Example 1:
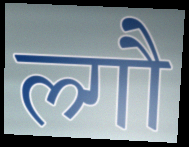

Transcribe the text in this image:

ल्गौ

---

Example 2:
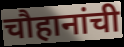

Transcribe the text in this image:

चौहानांची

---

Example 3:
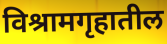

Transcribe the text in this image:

विश्रामगृहातील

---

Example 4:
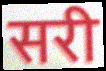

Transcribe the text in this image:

सरी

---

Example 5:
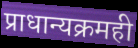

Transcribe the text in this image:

प्राधान्यक्रमही